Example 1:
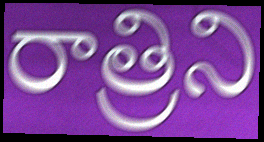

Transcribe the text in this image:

రాత్రిని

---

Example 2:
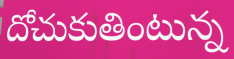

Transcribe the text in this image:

దోచుకుతింటున్న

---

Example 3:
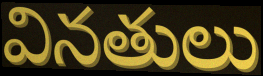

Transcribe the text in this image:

వినతులు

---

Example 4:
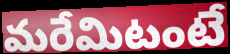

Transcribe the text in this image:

మరేమిటంటే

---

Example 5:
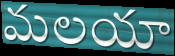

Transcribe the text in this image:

మలయా